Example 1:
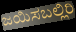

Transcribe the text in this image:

ಜಯಿಸಬಲ್ಲಿರಿ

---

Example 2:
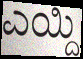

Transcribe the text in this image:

ಎಯ್ದಿ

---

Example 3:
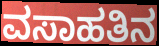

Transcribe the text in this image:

ವಸಾಹತಿನ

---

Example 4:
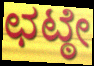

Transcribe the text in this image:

ಛಟ್ಠೇ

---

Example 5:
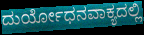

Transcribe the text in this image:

ದುರ್ಯೋಧನವಾಕ್ಯದಲ್ಲಿ